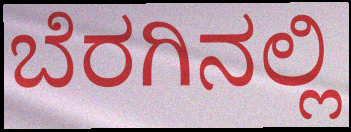
ಬೆರಗಿನಲ್ಲಿ